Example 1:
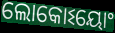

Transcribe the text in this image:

ଲୋକୋଽୟୋଂ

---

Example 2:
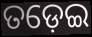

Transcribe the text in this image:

ତଡ଼େଇ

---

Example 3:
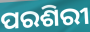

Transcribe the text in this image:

ପରଶିରୀ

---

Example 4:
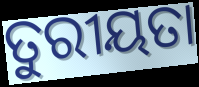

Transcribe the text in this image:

ତୁରୀୟତା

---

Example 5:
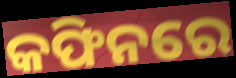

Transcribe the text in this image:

କଫିନରେ